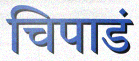
चिपाडं